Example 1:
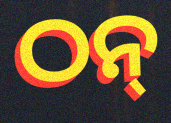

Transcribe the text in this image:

ଠନ୍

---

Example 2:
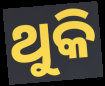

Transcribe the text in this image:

ଥୁକି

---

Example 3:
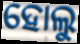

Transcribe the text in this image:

ହୋଲୁ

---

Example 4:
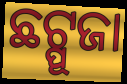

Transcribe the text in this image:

ଛଟ୍ପୂଜା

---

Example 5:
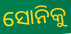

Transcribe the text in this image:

ସୋନିକୁ